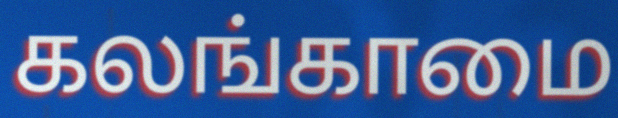
கலங்காமை